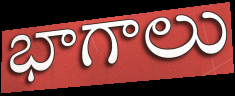
భాగాలు